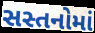
સસ્તનોમાં